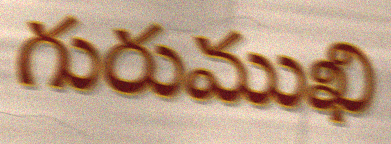
గురుముఖి